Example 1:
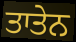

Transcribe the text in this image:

ਤਾਤੇਨ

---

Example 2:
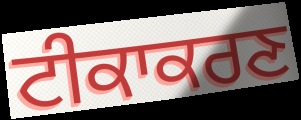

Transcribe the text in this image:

ਟੀਕਾਕਰਣ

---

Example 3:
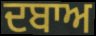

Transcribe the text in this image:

ਦਬਾਅ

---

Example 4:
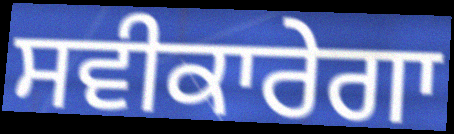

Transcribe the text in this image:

ਸਵੀਕਾਰੇਗਾ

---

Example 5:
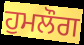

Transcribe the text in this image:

ਹੁਮਲੌਗ